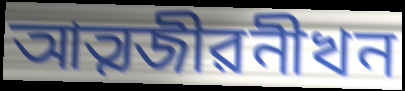
আত্মজীৱনীখন